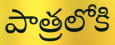
పాత్రలోకి